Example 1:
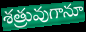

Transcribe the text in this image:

శత్రువుగానూ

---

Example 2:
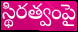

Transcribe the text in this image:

స్థిరత్వంపై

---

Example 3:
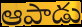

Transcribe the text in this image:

ఆపాడు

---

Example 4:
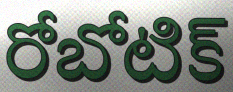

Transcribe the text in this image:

రోబోటిక్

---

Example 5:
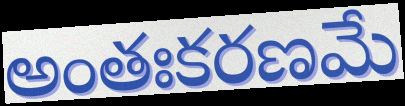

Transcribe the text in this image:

అంతఃకరణమే